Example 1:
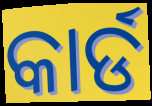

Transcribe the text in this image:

କାର୍ଡ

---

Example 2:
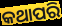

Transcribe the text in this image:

କଥାପରି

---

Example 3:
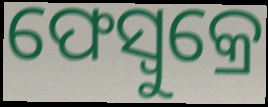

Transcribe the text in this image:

ଫେସ୍ବୁକ୍ରେ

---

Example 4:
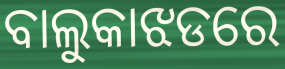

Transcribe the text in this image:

ବାଲୁକାଝଡରେ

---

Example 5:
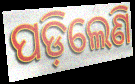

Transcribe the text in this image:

ପଡ଼ିଲେଣି